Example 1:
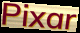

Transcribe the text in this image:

Pixar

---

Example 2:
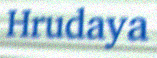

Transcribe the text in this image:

Hrudaya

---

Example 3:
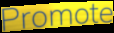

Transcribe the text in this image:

Promote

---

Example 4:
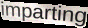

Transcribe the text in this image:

imparting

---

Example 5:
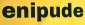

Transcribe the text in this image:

enipude